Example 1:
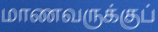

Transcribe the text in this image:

மாணவருக்குப்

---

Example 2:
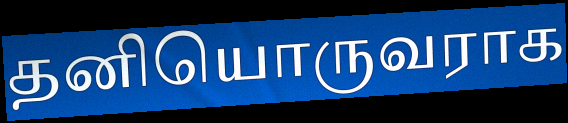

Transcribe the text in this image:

தனியொருவராக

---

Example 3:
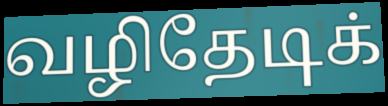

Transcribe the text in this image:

வழிதேடிக்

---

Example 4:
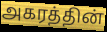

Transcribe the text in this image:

அகரத்தின்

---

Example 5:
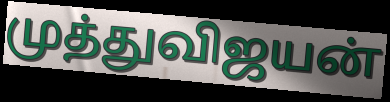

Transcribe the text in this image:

முத்துவிஜயன்